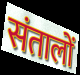
संतालों